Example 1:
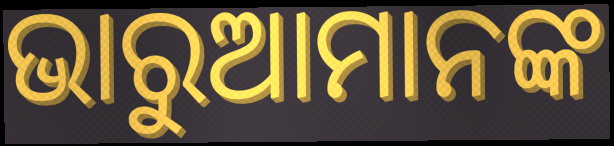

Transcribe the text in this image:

ଭାରୁଆମାନଙ୍କ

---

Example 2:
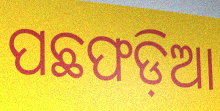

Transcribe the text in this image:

ପଛଫଡ଼ିଆ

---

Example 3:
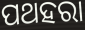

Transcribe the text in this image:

ପଥହରା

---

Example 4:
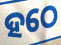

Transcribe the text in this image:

ହଠେ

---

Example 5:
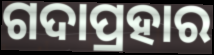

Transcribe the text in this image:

ଗଦାପ୍ରହାର